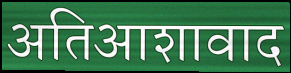
अतिआशावाद